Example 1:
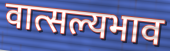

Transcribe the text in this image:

वात्सल्यभाव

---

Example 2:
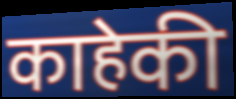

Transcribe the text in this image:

काहेकी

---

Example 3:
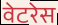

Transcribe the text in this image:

वेटरेस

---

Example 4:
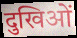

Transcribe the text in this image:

दुखिओं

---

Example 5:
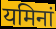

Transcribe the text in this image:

यमिनां